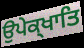
ਉਪੇਕ੍ਖਾਤਿ